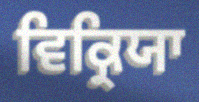
ਵਿਕ੍ਰਿਯਾ